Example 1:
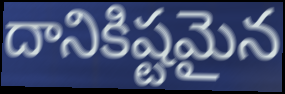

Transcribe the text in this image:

దానికిష్టమైన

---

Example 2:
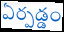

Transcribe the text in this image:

ఏర్పడ్డం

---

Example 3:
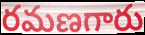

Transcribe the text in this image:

రమణగారు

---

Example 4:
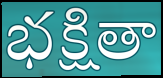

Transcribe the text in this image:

భక్షితా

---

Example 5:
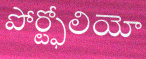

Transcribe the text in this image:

పోర్ట్ఫోలియో